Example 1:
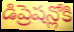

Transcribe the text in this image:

డిప్రెషన్లోకి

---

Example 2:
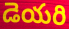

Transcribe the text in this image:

డెయరి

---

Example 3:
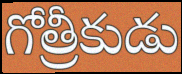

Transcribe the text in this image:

గోత్రీకుడు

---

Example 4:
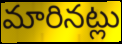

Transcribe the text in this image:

మారినట్లు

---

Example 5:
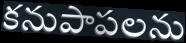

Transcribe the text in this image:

కనుపాపలను